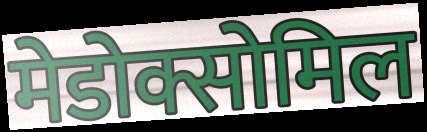
मेडोक्सोमिल